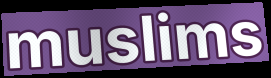
muslims